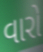
વારો